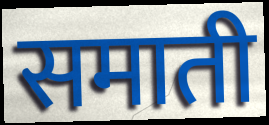
समाती